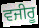
ਵਜੀਰੂ